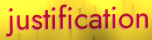
justification